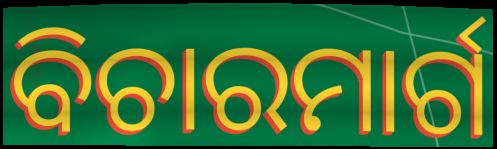
ବିଚାରମାର୍ଗ